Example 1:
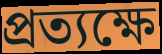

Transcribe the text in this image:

প্রত্যক্ষে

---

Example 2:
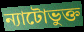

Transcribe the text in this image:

ন্যাটোভুক্ত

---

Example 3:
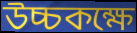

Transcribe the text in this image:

উচ্চকক্ষে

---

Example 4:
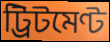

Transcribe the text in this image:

ট্রিটমেণ্ট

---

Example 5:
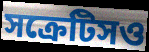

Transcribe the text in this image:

সক্রেটিসও